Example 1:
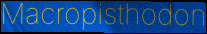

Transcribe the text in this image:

Macropisthodon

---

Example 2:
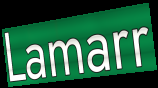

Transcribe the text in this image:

Lamarr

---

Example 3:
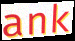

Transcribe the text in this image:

ank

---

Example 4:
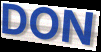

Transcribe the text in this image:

DON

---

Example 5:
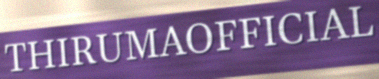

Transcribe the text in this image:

THIRUMAOFFICIAL